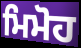
ਮਿਮੋਹ